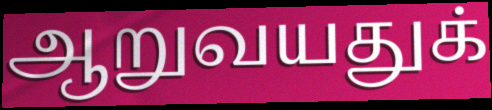
ஆறுவயதுக்